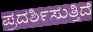
ಪ್ರದರ್ಶಿಸುತ್ತಿದೆ